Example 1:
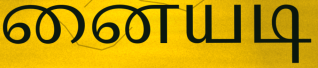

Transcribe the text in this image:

னையடி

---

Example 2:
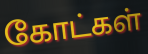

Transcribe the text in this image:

கோட்கள்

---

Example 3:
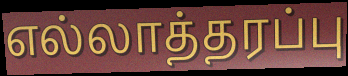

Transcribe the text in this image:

எல்லாத்தரப்பு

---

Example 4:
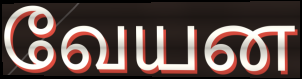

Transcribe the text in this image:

வேயன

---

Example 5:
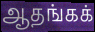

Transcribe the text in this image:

ஆதங்கக்